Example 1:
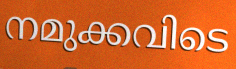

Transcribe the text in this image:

നമുക്കവിടെ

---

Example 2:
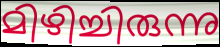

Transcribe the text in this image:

മിഴിച്ചിരുന്നു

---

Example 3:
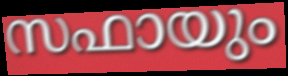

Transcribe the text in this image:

സഫായും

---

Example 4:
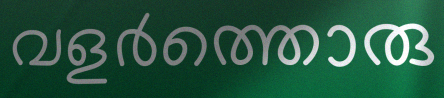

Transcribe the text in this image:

വളർത്തൊരു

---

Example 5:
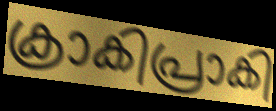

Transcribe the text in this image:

ക്രാകിപ്രാകി